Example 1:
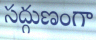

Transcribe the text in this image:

సద్గుణంగా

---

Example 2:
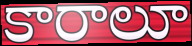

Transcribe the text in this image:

కారాలూ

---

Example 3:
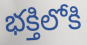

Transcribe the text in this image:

భక్తిలోకి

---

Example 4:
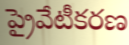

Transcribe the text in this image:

ప్రైవేటీకరణ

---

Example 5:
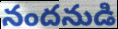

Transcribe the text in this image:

నందనుడి